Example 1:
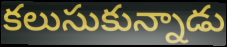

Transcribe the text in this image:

కలుసుకున్నాడు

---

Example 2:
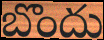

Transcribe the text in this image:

బొందు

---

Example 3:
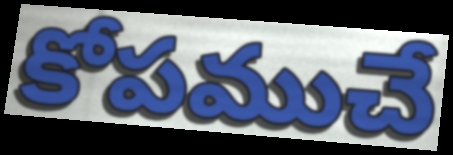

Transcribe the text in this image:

కోపముచే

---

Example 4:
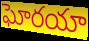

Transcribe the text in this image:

ఘోరయా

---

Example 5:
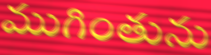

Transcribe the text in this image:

ముగింతును